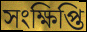
সংক্ষিপ্তি